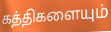
கத்திகளையும்